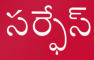
సర్ఫేస్